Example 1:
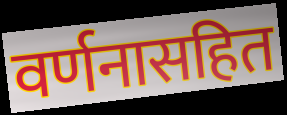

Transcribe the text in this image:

वर्णनासहित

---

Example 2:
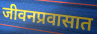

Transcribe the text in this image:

जीवनप्रवासात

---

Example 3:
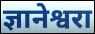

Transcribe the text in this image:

ज्ञानेश्वरा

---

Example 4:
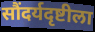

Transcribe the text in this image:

सौंदर्यदृष्टीला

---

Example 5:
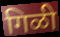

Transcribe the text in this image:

गिळी